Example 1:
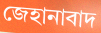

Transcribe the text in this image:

জেহানাবাদ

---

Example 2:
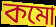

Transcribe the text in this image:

কমো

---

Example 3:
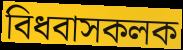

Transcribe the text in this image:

বিধবাসকলক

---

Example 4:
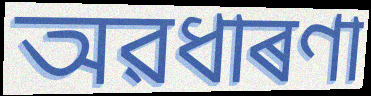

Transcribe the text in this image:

অৱধাৰণা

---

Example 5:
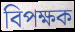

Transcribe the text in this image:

বিপক্ষক